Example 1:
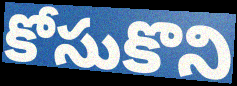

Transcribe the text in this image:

కోసుకొని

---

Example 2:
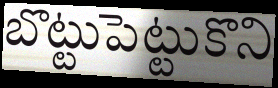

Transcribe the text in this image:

బొట్టుపెట్టుకొని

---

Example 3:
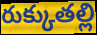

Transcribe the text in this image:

రుక్కుతల్లి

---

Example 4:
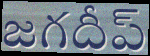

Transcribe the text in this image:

జగదీప్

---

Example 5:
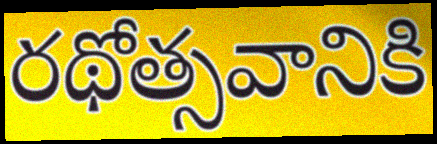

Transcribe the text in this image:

రథోత్సవానికి